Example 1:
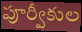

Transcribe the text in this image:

పూర్వీకుల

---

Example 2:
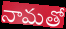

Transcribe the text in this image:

నామతో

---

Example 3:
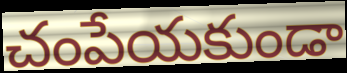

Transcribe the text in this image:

చంపేయకుండా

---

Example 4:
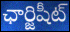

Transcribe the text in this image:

ఛార్జిషీట్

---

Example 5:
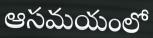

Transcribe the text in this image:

ఆసమయంలో